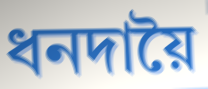
ধনদায়ৈ